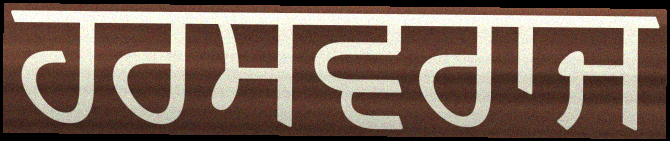
ਹਰਸਵਰਾਜ